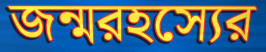
জন্মরহস্যের